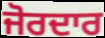
ਜੋਰਦਾਰ